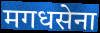
मगधसेना